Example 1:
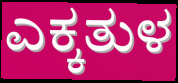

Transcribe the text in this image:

ಎಕ್ಕತುಳ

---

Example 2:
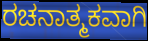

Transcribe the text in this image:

ರಚನಾತ್ಮಕವಾಗಿ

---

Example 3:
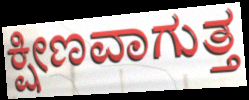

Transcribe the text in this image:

ಕ್ಷೀಣವಾಗುತ್ತ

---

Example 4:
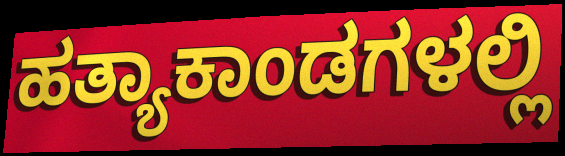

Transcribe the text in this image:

ಹತ್ಯಾಕಾಂಡಗಳಲ್ಲಿ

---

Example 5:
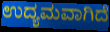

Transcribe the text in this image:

ಉದ್ಯಮವಾಗಿದೆ